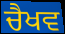
ਚੈਖਵ